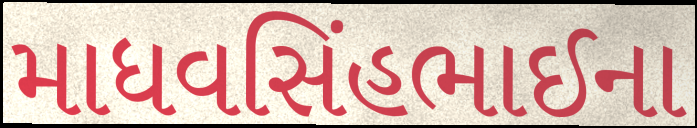
માધવસિંહભાઈના